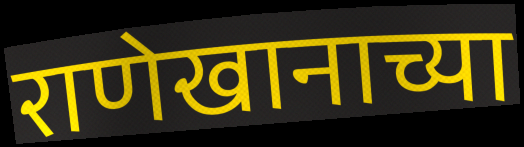
राणेखानाच्या